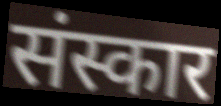
संस्कार